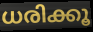
ധരിക്കൂ